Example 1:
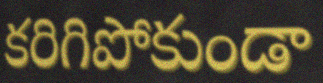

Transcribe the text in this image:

కరిగిపోకుండా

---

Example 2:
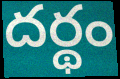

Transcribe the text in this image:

దర్థం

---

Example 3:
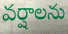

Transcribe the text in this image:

వర్షాలను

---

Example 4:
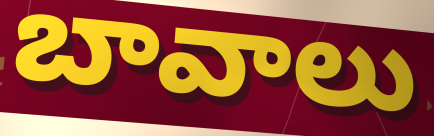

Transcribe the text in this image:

బావాలు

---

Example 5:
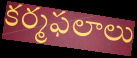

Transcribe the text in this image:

కర్మఫలాలు